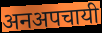
अनअपचायी